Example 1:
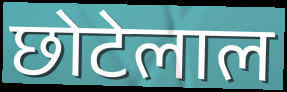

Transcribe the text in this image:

छोटेलाल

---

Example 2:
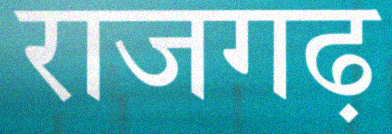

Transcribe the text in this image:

राजगढ़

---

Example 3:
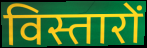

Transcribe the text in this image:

विस्तारों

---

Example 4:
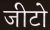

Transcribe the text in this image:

जीटो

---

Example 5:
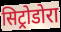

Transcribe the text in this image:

सिट्रोडोरा